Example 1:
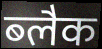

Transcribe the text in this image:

ब्‍लैक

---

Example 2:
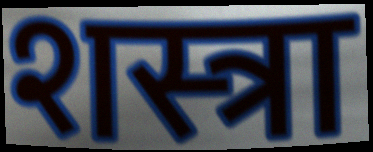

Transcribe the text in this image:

शस्त्रा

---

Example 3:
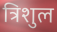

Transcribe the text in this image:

त्रिशुल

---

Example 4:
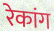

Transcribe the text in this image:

रेकांग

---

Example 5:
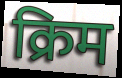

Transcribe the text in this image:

क्रिम